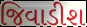
જિવાડીશ